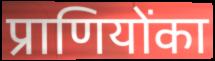
प्राणियोंका